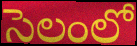
సెలంలో